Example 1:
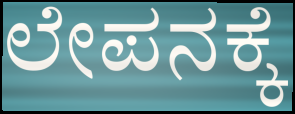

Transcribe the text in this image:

ಲೇಪನಕ್ಕೆ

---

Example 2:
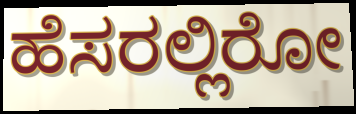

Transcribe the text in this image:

ಹೆಸರಲ್ಲಿರೋ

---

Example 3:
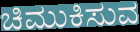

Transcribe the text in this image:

ಚಿಮುಕಿಸುವ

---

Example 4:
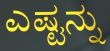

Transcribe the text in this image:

ಎಷ್ಟನ್ನು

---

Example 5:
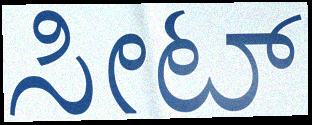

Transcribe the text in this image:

ಸೀಟ್